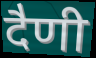
दैणी